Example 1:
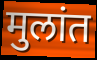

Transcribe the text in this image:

मुलांत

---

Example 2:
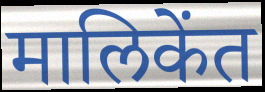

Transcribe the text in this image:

मालिकेंत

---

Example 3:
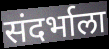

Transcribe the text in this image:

संदर्भाला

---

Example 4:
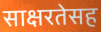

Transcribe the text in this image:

साक्षरतेसह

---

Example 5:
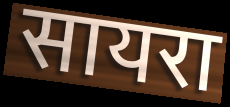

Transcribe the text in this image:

सायरा